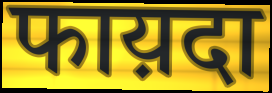
फाय़दा